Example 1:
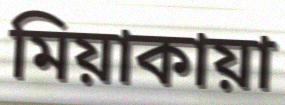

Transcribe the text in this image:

মিয়াকায়া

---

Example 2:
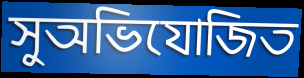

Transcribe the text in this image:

সুঅভিযোজিত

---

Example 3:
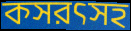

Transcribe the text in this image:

কসরৎসহ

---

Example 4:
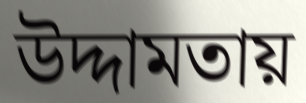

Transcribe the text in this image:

উদ্দামতায়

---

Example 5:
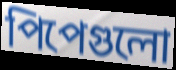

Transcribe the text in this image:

পিপেগুলো